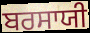
ਬਰਸਾਯੀ